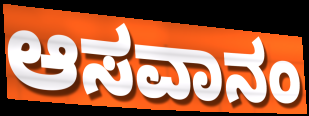
ಆಸವಾನಂ